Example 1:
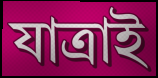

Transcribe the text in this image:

যাত্ৰাই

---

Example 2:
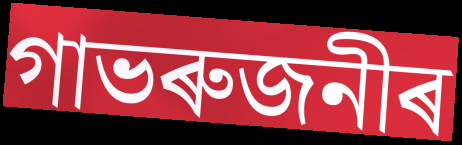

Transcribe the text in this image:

গাভৰুজনীৰ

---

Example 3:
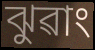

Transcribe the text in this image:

ঝুৱাং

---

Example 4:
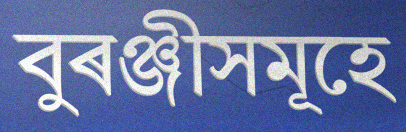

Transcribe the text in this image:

বুৰঞ্জীসমূহে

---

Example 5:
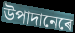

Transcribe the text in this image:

উপাদানেৰে